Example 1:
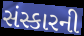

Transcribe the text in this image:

સંસ્કારની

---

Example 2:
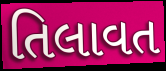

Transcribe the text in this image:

તિલાવત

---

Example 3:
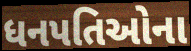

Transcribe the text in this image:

ધનપતિઓના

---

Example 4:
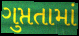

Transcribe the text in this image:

ગુપ્તતામાં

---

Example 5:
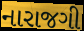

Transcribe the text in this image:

નારાજગી